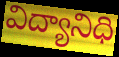
విద్యానిధి